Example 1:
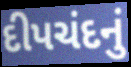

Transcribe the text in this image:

દીપચંદનું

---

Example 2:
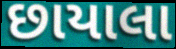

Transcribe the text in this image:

છાયાલા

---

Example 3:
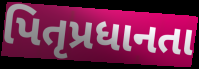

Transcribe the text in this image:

પિતૃપ્રધાનતા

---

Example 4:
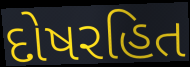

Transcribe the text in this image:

દોષરહિત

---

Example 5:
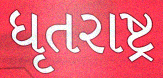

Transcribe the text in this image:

ધૃતરાષ્ટ્ર